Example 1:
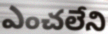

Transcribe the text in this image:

ఎంచలేని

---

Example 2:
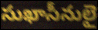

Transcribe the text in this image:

సుఖాసీనులై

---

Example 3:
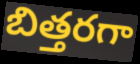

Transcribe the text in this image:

బిత్తరగా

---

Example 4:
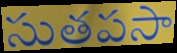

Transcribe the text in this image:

సుతపసా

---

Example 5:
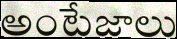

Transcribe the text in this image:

అంటేజాలు